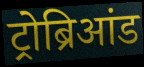
ट्रोब्रिआंड